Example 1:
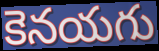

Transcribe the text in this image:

కెనయగు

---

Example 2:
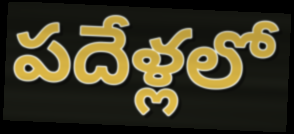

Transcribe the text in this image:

పదేళ్లలో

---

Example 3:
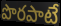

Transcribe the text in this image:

పొరపాటే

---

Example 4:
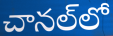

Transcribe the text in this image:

చానల్‌లో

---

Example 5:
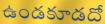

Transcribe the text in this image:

ఉండకూడదో